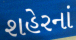
શહેરનાં